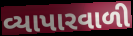
વ્યાપારવાળી